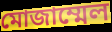
মোজাম্মেল